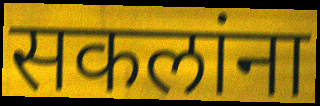
सकलांना